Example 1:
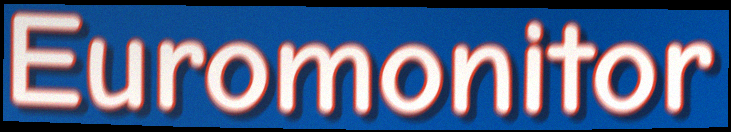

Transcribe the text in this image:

Euromonitor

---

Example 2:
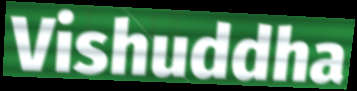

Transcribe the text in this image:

Vishuddha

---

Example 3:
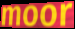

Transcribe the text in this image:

moor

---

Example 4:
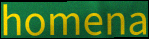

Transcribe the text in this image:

homena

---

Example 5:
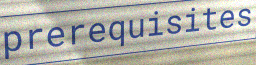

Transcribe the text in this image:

prerequisites